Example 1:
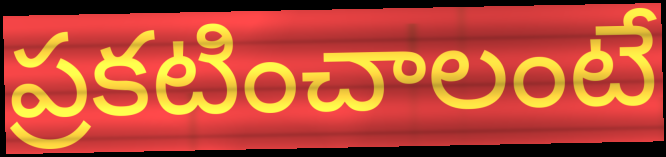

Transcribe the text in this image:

ప్రకటించాలంటే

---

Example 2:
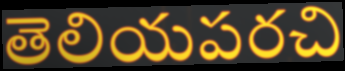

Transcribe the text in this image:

తెలియపరచి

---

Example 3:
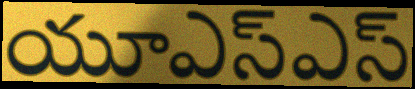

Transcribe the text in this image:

యూఎస్ఎస్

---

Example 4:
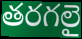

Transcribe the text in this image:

తరగలై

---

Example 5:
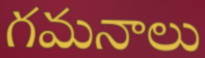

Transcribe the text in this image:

గమనాలు